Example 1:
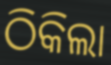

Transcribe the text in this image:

ଠିକିଲା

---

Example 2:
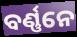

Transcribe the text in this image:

ବର୍ଣ୍ଣନେ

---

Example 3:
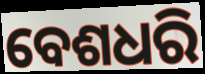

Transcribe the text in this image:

ବେଶଧରି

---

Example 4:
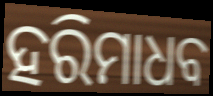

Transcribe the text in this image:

ହରିମାଧବ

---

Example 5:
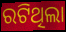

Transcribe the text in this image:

ରଟିଥିଲା